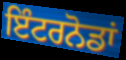
ਇੰਟਰਨੋਡਾਂ